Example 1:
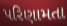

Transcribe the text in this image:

પરિણામતા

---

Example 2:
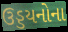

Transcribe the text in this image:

ઉડ્ડયનોના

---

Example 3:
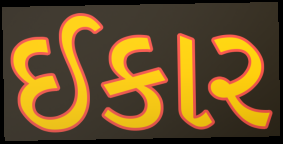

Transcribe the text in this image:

ઈકાર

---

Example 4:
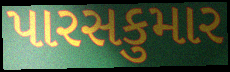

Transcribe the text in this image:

પારસકુમાર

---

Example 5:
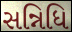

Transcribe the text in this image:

સન્નિધિ